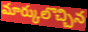
మార్కులొచ్చిన